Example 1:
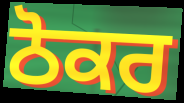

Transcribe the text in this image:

ਠੋਕਰ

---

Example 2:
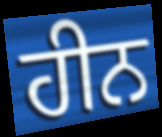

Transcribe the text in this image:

ਹੀਨ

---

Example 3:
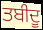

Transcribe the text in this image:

ਤਬੀਦੂ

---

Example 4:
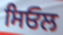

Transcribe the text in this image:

ਸਿਓਲ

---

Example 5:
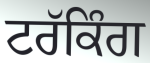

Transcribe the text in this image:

ਟਰੱਕਿੰਗ